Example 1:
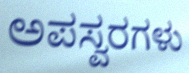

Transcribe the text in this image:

ಅಪಸ್ವರಗಳು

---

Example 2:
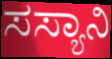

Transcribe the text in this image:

ಸಸ್ಯಾನಿ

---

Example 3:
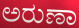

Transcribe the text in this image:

ಅರುಣಾ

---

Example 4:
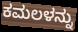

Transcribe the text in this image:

ಕಮಲಳನ್ನು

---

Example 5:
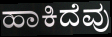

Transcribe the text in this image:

ಹಾಕಿದೆವು